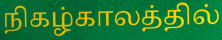
நிகழ்காலத்தில்